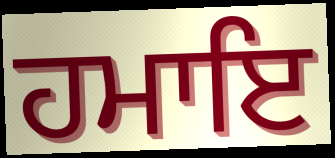
ਹਮਾਇ